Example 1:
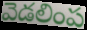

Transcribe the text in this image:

వెడలింప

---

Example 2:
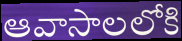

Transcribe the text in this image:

ఆవాసాలలోకి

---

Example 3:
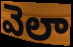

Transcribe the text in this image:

వెలా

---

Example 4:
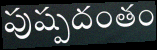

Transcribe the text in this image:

పుష్పదంతం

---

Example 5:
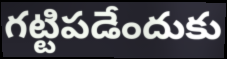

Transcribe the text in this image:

గట్టిపడేందుకు